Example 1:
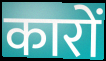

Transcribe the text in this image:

कारों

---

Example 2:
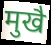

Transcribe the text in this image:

मुखै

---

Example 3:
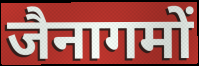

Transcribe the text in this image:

जैनागमों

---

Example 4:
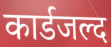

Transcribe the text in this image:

कार्डजल्द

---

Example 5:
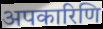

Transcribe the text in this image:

अपकारिणि